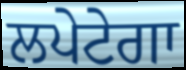
ਲਪੇਟੇਗਾ